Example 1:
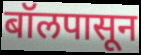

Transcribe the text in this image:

बॉलपासून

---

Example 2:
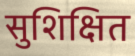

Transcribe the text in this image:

सुशिक्षित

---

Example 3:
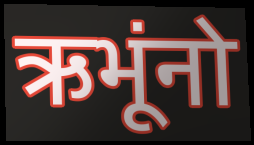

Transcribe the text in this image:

ऋभूंनो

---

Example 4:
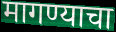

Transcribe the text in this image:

मागण्याचा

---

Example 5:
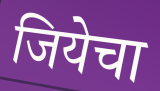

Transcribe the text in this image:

जियेचा